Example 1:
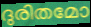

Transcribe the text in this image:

ദുരിതമോ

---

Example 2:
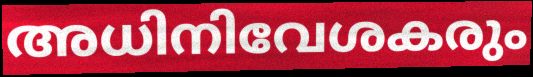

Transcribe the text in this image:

അധിനിവേശകരും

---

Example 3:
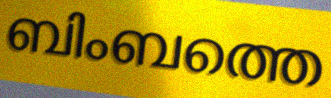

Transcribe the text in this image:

ബിംബത്തെ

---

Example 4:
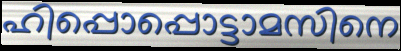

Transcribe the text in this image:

ഹിപ്പൊപ്പൊട്ടാമസിനെ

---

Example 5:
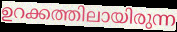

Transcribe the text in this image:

ഉറക്കത്തിലായിരുന്ന